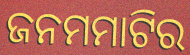
ଜନମମାଟିର